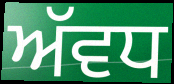
ਅੱਵਧ